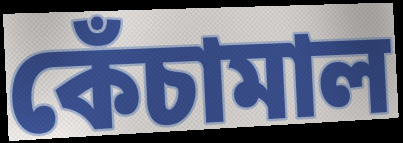
কেঁচামাল